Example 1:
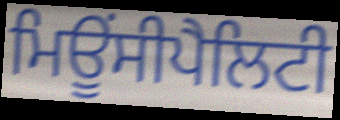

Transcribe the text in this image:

ਮਿਊਂਸੀਪੈਲਿਟੀ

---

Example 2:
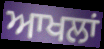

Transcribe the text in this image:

ਆਖਲਾਂ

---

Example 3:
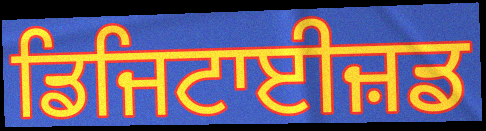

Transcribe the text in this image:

ਡਿਜਿਟਾਈਜ਼ਡ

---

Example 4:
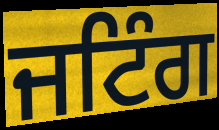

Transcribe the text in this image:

ਜਟਿੰਗ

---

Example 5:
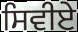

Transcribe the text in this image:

ਸਿਵੀਏ